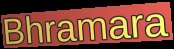
Bhramara